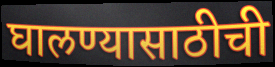
घालण्यासाठीची